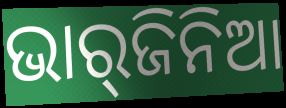
ଭାର୍‌ଜିନିଆ